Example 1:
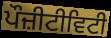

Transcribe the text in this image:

ਪੌਜ਼ੀਟੀਵਿਟੀ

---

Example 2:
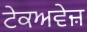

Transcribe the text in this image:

ਟੇਕਅਵੇਜ਼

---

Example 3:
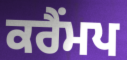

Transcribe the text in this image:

ਕਰੈਂਮਪ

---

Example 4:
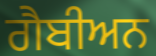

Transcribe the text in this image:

ਗੈਬੀਅਨ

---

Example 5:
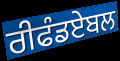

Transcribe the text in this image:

ਰੀਫੰਡਏਬਲ